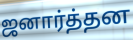
ஜனார்த்தன